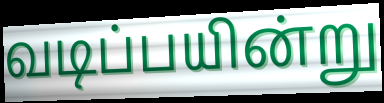
வடிப்பயின்று